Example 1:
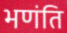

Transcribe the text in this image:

भणंति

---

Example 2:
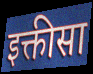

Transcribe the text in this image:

इक्तीसा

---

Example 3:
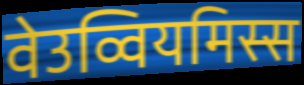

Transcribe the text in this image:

वेउव्वियमिस्स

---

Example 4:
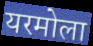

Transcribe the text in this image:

यरमोला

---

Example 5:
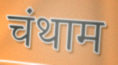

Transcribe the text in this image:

चंथाम